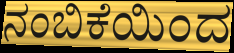
ನಂಬಿಕೆಯಿಂದ